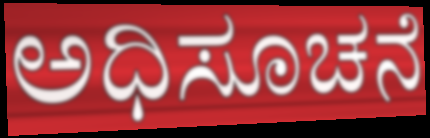
ಅಧಿಸೂಚನೆ